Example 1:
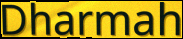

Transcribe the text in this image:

Dharmah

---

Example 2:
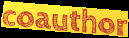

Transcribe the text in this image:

coauthor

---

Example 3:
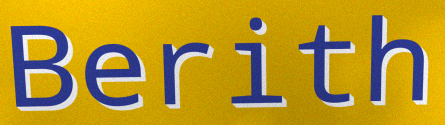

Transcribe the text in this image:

Berith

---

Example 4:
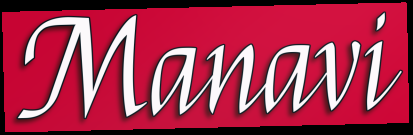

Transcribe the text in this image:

Manavi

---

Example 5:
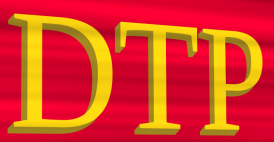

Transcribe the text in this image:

DTP